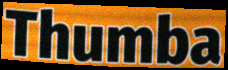
Thumba